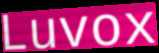
Luvox